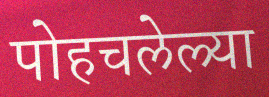
पोहचलेल्या